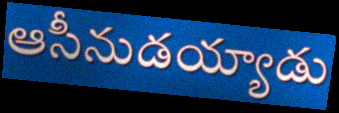
ఆసీనుడయ్యాడు